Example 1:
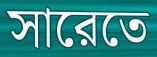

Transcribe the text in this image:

সারেতে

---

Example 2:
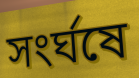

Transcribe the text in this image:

সংর্ঘষে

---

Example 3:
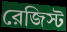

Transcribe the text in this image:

রেজিস্ট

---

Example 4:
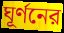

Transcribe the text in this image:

ঘূর্ণনের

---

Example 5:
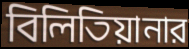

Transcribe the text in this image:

বিলিতিয়ানার